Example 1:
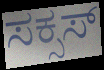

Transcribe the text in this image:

ಸಕ್ಸಸ್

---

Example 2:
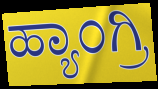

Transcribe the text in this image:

ಹ್ಯಾಂಗ್ರಿ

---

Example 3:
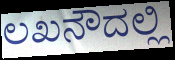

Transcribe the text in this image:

ಲಖನೌದಲ್ಲಿ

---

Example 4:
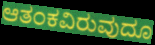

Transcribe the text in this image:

ಆತಂಕವಿರುವುದೂ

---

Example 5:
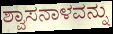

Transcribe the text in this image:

ಶ್ವಾಸನಾಳವನ್ನು